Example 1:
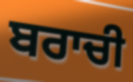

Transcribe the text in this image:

ਬਰਾਚੀ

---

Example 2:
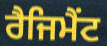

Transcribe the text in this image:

ਰੈਜਿਮੈਂਟ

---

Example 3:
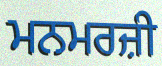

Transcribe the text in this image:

ਮਨਮਰਜ਼ੀ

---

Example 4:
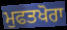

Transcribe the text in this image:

ਮੁਫਤਖੋਰਾ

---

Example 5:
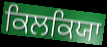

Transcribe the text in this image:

ਕਿਲਕਿਯਾ